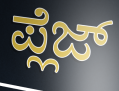
ಪ್ಲೆಜ್